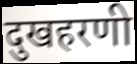
दुखहरणी